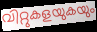
വിറ്റുകളയുകയും